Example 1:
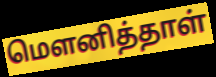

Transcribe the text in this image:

மௌனித்தாள்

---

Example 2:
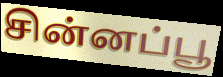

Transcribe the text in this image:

சின்னப்பூ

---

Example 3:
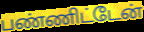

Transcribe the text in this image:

பண்ணிட்டேன்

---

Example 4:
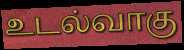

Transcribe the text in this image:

உடல்வாகு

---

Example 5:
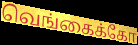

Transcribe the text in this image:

வெங்கைக்கோ